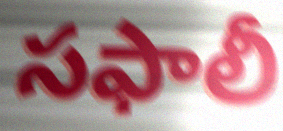
సఫాలీ